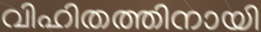
വിഹിതത്തിനായി